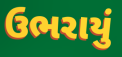
ઉભરાયું